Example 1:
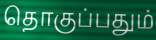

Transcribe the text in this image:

தொகுப்பதும்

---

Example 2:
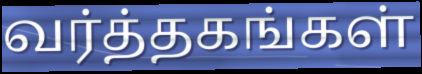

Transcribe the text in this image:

வர்த்தகங்கள்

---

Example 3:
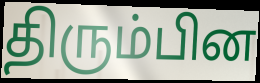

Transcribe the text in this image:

திரும்பின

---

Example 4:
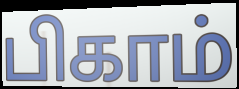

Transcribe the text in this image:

பிகாம்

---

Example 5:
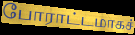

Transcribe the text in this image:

போராட்டமாகச்